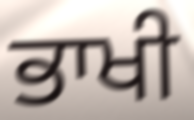
ਭਾਖੀ